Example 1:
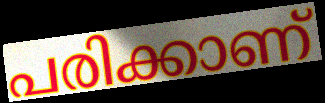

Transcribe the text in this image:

പരിക്കാണ്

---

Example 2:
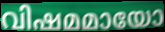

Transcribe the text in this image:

വിഷമമായോ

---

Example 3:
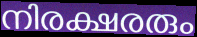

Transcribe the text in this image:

നിരക്ഷരരും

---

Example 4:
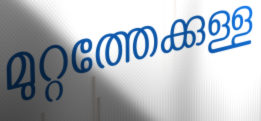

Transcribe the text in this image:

മുറ്റത്തേക്കുള്ള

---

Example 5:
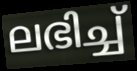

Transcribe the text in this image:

ലഭിച്ച്